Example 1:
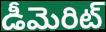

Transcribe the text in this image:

డీమెరిట్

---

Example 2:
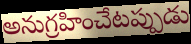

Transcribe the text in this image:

అనుగ్రహించేటప్పుడు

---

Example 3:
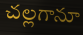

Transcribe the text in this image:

చల్లగానూ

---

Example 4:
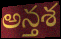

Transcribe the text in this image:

అన్తశ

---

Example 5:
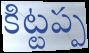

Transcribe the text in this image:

కిట్టప్ప